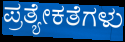
ಪ್ರತ್ಯೇಕತೆಗಳು